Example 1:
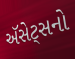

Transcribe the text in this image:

ઍસેટ્સનો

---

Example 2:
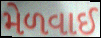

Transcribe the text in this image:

મેળવાઈ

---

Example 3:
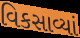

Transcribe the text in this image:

વિકસાવ્યાં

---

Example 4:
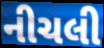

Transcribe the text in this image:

નીચલી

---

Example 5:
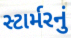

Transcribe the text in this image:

સ્ટાર્મરનું